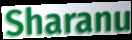
Sharanu